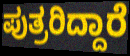
ಪುತ್ರರಿದ್ದಾರೆ